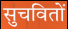
सुचवितों